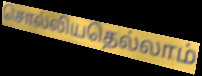
சொல்லியதெல்லாம்